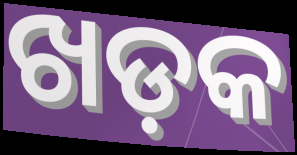
ଖଡ଼କ